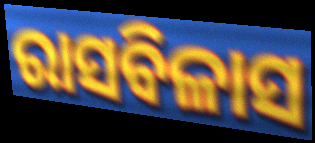
ରାସବିଳାସ